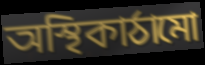
অস্থিকাঠামো